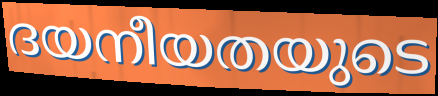
ദയനീയതയുടെ